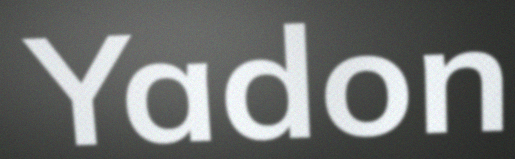
Yadon